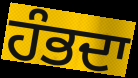
ਹੰਭਦਾ